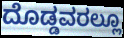
ದೊಡ್ಡವರಲ್ಲೂ